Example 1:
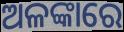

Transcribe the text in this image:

ଅଳଙ୍କାରେ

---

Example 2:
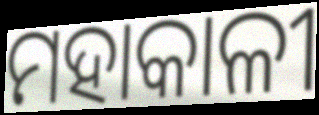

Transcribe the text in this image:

ମହାକାଳୀ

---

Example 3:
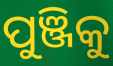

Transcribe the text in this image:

ପୁଞ୍ଜିକୁ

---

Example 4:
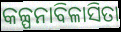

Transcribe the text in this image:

କଳ୍ପନାବିଳାସିତା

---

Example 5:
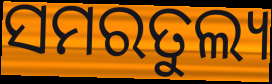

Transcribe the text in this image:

ସମରତୁଲ୍ୟ